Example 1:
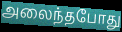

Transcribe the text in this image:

அலைந்தபோது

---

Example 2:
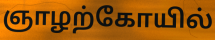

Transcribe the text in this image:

ஞாழற்கோயில்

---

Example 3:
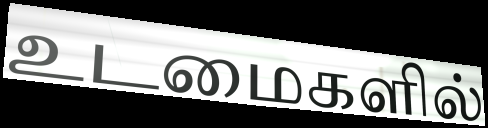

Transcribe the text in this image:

உடமைகளில்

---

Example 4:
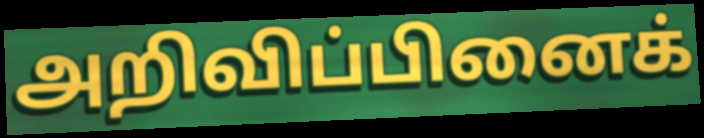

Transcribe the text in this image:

அறிவிப்பினைக்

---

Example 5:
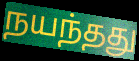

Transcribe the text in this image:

நயந்தது